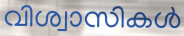
വിശ്വാസികൾ